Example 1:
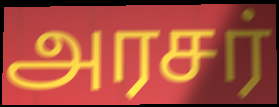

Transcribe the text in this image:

அரசர்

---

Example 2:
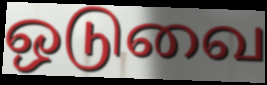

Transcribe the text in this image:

ஒடுவை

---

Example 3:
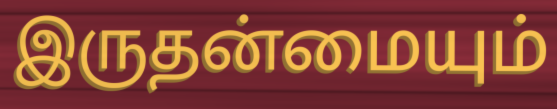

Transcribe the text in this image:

இருதன்மையும்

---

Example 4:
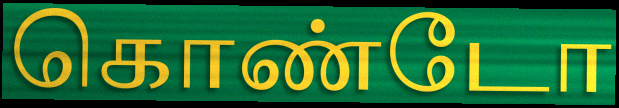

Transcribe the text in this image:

கொண்டோ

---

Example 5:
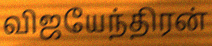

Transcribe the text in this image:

விஜயேந்திரன்